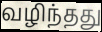
வழிந்தது